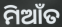
ମିଆଁତ